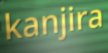
kanjira